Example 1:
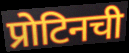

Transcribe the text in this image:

प्रोटिनची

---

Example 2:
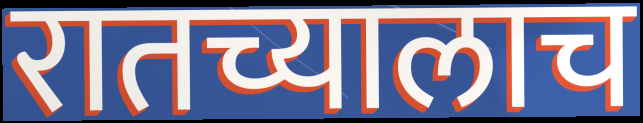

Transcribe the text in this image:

रातच्यालाच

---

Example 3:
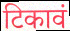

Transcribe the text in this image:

टिकावं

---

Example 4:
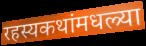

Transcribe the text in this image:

रहस्यकथांमधल्या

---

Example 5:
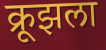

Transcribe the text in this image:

क्रूझला